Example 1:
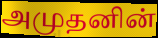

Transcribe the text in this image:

அமுதனின்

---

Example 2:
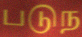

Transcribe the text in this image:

படுந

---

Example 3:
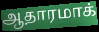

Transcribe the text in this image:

ஆதாரமாக்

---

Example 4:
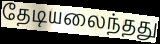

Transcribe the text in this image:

தேடியலைந்தது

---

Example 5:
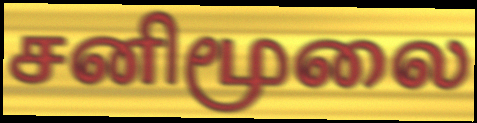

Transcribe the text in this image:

சனிமூலை